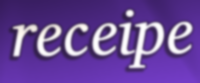
receipe